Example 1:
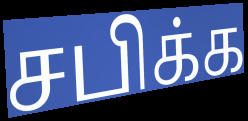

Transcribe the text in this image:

சபிக்க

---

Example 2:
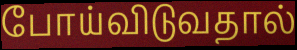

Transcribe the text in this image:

போய்விடுவதால்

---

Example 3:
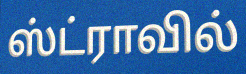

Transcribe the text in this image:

ஸ்ட்ராவில்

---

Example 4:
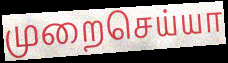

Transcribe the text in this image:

முறைசெய்யா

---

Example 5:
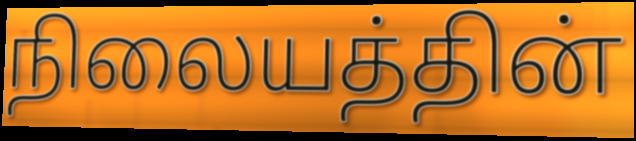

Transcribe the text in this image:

நிலையத்தின்